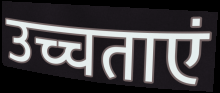
उच्चताएं